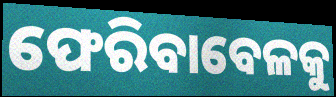
ଫେରିବାବେଳକୁ